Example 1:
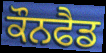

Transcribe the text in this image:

ਕੌਨਫੈਡ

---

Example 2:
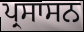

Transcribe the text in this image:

ਪ੍ਰਸਾਸਨ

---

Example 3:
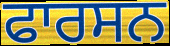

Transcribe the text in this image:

ਫਾਰਸਨ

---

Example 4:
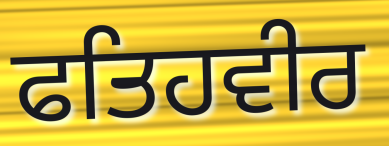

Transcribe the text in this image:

ਫਤਿਹਵੀਰ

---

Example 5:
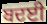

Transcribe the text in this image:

ਬਦਈ